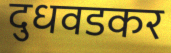
दुधवडकर